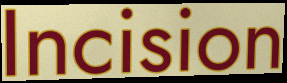
Incision